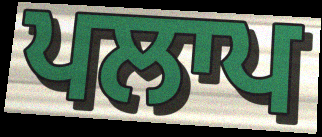
ਪਲਾਪ